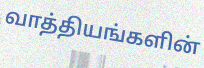
வாத்தியங்களின்